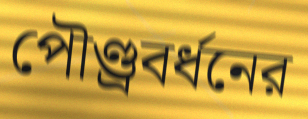
পৌণ্ড্রবর্ধনের